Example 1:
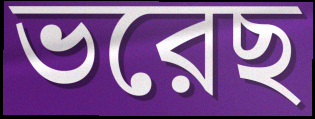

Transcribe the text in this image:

ভরেছ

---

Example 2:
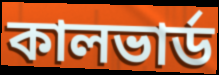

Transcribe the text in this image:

কালভার্ড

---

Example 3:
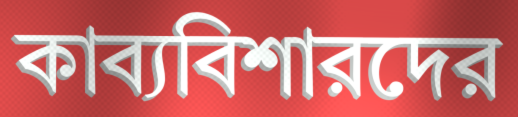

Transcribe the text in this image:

কাব্যবিশারদের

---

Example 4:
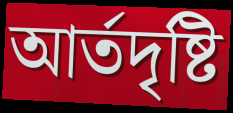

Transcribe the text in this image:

আর্তদৃষ্টি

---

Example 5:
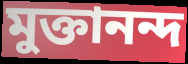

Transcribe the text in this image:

মুক্তানন্দ